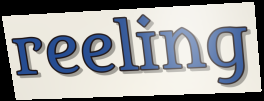
reeling